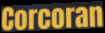
Corcoran